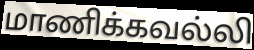
மாணிக்கவல்லி